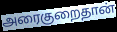
அரைகுறைதான்